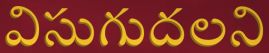
విసుగుదలని